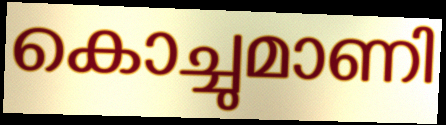
കൊച്ചുമാണി